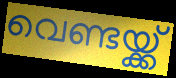
വെണ്ടയ്ക്ക്